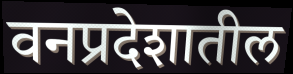
वनप्रदेशातील